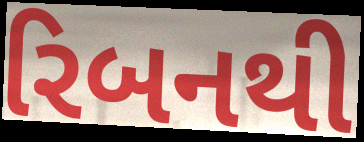
રિબનથી